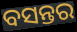
ବସନ୍ତର